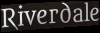
Riverdale